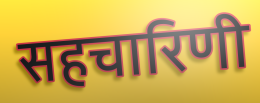
सहचारिणी